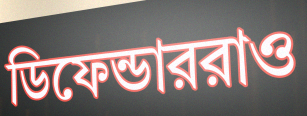
ডিফেন্ডাররাও